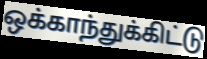
ஒக்காந்துக்கிட்டு